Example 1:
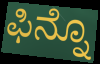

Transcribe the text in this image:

ಫಿನ್ನೊ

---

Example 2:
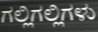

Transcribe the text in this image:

ಗಲ್ಲಿಗಲ್ಲಿಗಳು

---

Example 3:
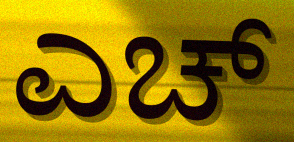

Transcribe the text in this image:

ಎಚ್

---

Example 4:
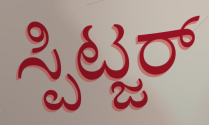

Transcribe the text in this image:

ಸ್ಪಿಟ್ಜರ್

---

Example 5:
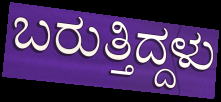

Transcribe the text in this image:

ಬರುತ್ತಿದ್ದಳು